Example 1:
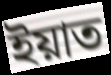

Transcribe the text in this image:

ইয়াত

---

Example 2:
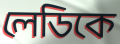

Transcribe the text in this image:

লেডিকে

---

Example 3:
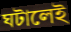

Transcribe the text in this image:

ঘটালেই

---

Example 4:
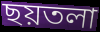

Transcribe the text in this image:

ছয়তলা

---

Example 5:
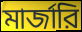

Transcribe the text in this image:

মার্জারি